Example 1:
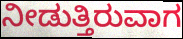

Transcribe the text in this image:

ನೀಡುತ್ತಿರುವಾಗ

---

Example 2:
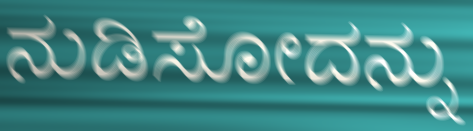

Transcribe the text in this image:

ನುಡಿಸೋದನ್ನು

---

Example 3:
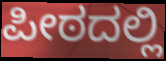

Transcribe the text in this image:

ಪೀಠದಲ್ಲಿ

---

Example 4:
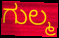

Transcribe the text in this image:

ಗುಲ್ಮ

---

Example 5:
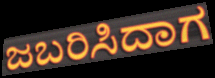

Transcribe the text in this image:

ಜಬರಿಸಿದಾಗ